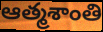
ఆత్మశాంతి